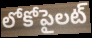
లోకోపైలట్